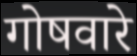
गोषवारे